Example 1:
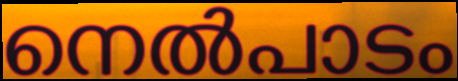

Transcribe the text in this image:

നെൽപാടം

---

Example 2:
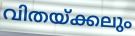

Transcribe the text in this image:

വിതയ്ക്കലും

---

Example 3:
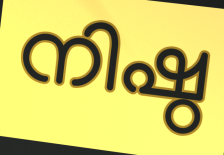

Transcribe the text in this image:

നിഷ്ഠ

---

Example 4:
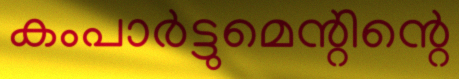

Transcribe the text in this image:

കംപാർട്ടുമെന്റിന്റെ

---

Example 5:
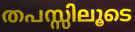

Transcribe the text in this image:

തപസ്സിലൂടെ